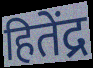
हितेंद्र